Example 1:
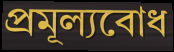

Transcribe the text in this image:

প্ৰমূল্যবোধ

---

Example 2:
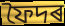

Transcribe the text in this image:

ফৈদৰ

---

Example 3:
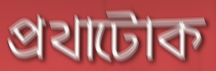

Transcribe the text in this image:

প্ৰথাটোক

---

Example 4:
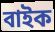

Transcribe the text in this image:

বাইক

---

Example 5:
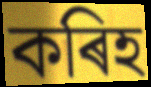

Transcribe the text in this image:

কৰিহ